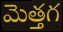
మెత్తగ